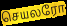
செயலரோ